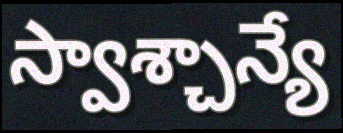
స్వాశ్చాన్యే